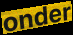
onder